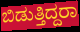
ಬಿಡುತ್ತಿದ್ದರಾ